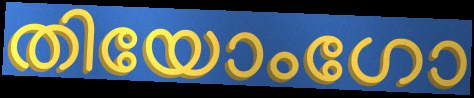
തിയോംഗോ